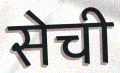
सेची